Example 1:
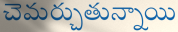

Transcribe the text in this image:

చెమర్చుతున్నాయి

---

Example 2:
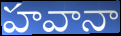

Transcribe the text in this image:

హవానా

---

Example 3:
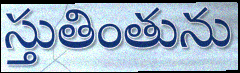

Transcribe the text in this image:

స్తుతింతును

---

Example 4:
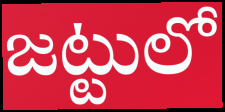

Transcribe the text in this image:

జట్టులో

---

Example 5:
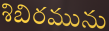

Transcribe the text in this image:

శిబిరమును